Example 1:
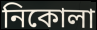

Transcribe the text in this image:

নিকোলা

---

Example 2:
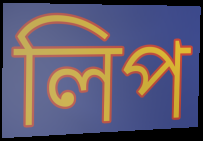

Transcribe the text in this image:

লিপ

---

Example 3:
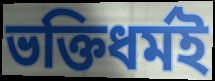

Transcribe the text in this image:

ভক্তিধৰ্মই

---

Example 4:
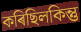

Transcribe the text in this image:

কৰিছিলকিন্তু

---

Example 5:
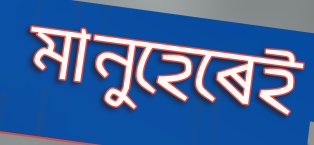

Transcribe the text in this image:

মানুহেৰেই